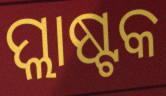
ପ୍ଲାଷ୍ଟକ